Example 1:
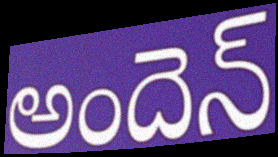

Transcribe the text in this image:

అందెన్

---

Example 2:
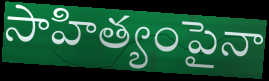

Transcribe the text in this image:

సాహిత్యంపైనా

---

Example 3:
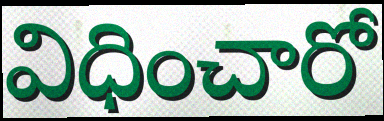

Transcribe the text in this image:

విధించారో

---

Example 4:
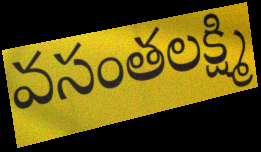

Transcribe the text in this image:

వసంతలక్ష్మి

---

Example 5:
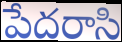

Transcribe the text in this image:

పేదరాసి